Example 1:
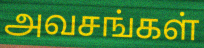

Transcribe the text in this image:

அவசங்கள்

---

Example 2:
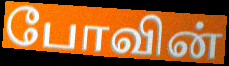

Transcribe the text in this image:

போவின்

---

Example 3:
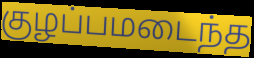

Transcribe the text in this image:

குழப்பமடைந்த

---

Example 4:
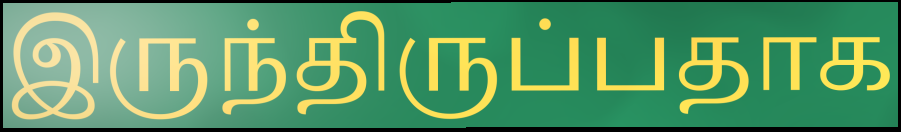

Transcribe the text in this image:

இருந்திருப்பதாக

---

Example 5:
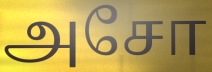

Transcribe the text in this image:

அசோ